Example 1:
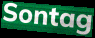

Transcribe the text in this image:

Sontag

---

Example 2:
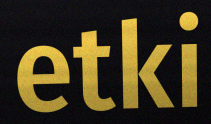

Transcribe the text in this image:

etki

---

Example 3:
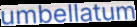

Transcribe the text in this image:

umbellatum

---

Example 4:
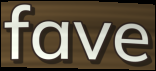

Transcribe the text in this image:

fave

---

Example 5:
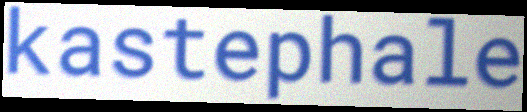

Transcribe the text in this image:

kastephale